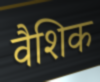
वैशिक